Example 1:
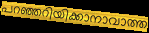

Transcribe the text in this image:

പറഞ്ഞറിയിക്കാനാവാത്ത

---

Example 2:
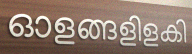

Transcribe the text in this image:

ഓളങ്ങളിളകി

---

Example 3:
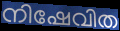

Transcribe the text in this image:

നിഷേവിത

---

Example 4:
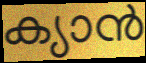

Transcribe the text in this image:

ക്യാൻ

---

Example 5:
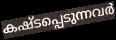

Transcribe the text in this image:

കഷ്ടപ്പെടുന്നവർ